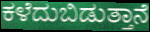
ಕಳೆದುಬಿಡುತ್ತಾನೆ